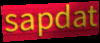
sapdat